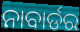
ନାବାର୍ଡର